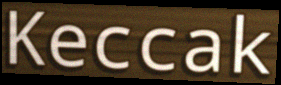
Keccak